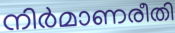
നിർമാണരീതി